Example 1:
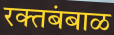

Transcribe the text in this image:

रक्तबंबाळ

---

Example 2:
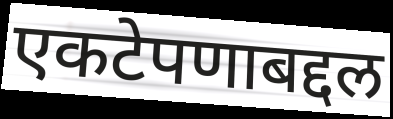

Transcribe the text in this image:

एकटेपणाबद्दल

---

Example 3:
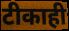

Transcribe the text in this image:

टीकाही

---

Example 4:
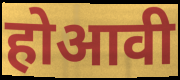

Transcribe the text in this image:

होआवी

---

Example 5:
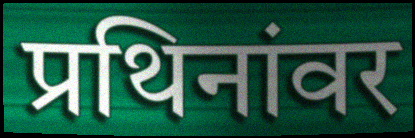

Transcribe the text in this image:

प्रथिनांवर